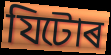
যিটোৰ